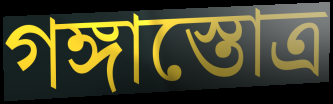
গঙ্গাস্তোত্র